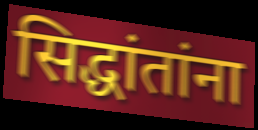
सिद्धांतांना